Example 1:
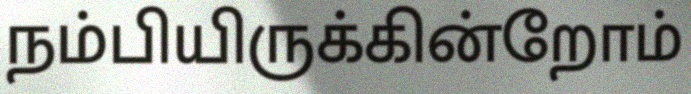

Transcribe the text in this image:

நம்பியிருக்கின்றோம்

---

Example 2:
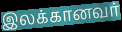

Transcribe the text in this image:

இலக்கானவர்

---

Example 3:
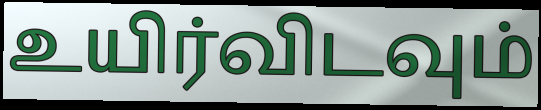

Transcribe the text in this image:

உயிர்விடவும்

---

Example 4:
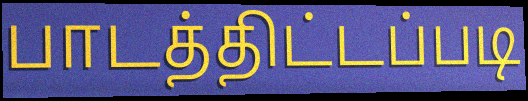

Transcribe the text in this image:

பாடத்திட்டப்படி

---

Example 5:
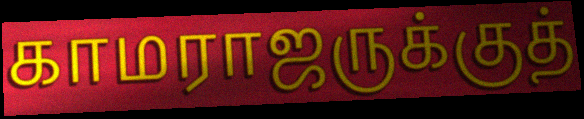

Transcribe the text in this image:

காமராஜருக்குத்